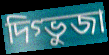
দিগ্ভুজা